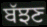
ਬੱਝਣ